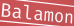
Balamon